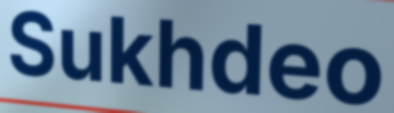
Sukhdeo